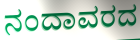
ನಂದಾವರದ